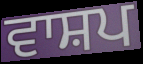
ਵਾਸ਼ਪ